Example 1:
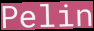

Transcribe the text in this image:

Pelin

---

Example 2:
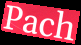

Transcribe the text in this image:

Pach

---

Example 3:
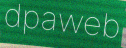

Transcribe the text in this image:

dpaweb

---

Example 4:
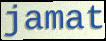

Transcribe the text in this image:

jamat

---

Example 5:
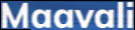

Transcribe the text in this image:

Maavali